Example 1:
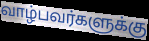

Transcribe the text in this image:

வாழ்பவர்களுக்கு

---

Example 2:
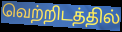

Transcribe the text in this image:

வெற்றிடத்தில்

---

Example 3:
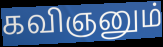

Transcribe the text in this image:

கவிஞனும்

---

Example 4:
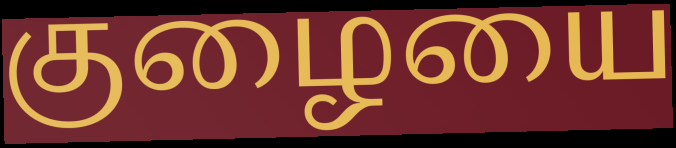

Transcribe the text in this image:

குழையை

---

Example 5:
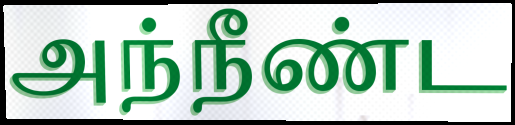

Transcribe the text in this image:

அந்நீண்ட